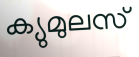
ക്യുമുലസ്